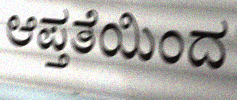
ಆಪ್ತತೆಯಿಂದ